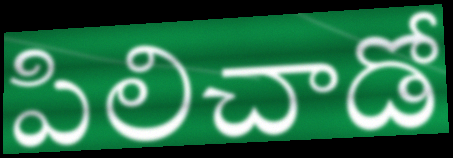
పిలిచాడో